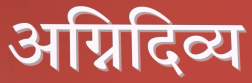
अग्निदिव्य